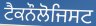
ਟੈਕਨੌਲੋਜਿਸਟ